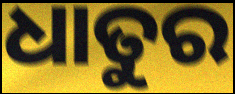
ଧାତୁର